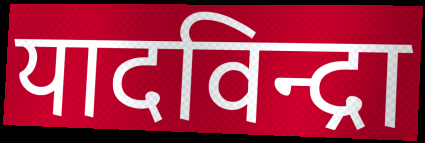
यादविन्द्रा